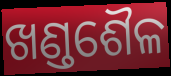
ଖଣ୍ଡଶୈଳ